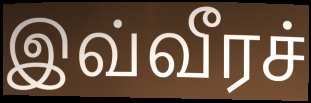
இவ்வீரச்